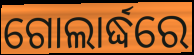
ଗୋଲାର୍ଦ୍ଧରେ